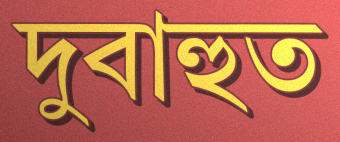
দুবাহুত